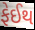
ફેઈથ